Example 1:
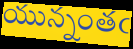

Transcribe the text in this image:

యున్నంతఁ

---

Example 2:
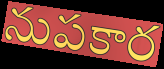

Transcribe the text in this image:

నుపకార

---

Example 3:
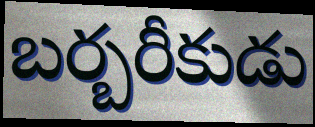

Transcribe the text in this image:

బర్బరీకుడు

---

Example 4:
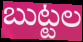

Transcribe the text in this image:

బుట్టల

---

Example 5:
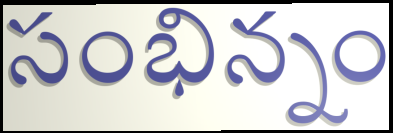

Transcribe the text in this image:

సంభిన్నం